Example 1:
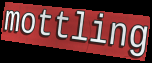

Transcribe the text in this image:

mottling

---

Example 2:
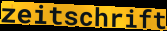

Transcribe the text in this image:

zeitschrift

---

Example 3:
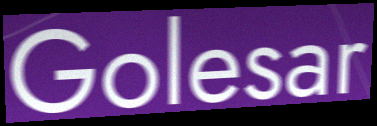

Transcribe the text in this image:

Golesar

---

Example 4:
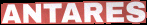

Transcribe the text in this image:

ANTARES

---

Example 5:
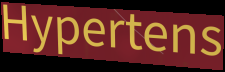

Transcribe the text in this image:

Hypertens